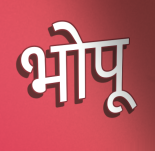
भोपू